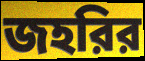
জহরির